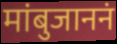
मांबुजाननं